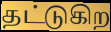
தட்டுகிற